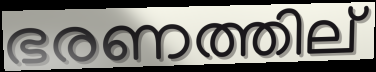
ഭരണത്തില്